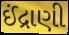
ઈંદ્રાણી